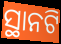
ସ୍ଥାନଟି